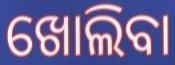
ଖୋଲିବା